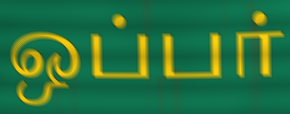
ஒப்பர்